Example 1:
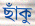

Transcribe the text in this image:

ছাঁকু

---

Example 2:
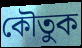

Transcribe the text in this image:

কৌতুক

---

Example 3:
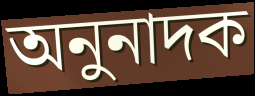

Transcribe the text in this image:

অনুনাদক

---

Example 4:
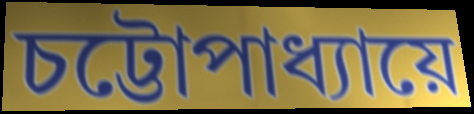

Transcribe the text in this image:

চট্টোপাধ্যায়ে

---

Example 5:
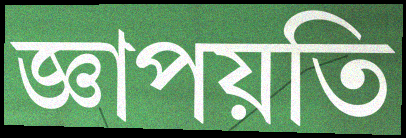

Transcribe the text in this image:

জ্ঞাপয়তি